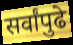
सर्वांपुढे